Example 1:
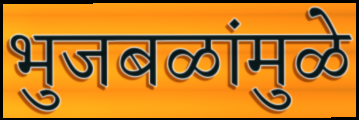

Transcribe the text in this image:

भुजबळांमुळे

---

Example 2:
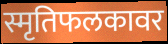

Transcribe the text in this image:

स्मृतिफलकावर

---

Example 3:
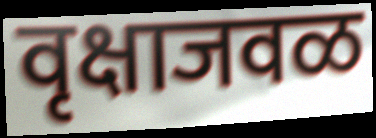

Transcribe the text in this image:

वृक्षाजवळ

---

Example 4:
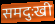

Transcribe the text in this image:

समदुःखी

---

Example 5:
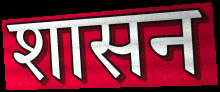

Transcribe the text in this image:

शासन